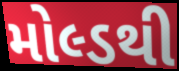
મોલ્ડથી